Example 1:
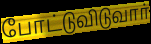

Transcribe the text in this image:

போட்டுவிடுவார்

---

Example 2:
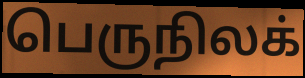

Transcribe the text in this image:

பெருநிலக்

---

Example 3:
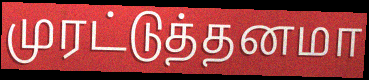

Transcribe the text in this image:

முரட்டுத்தனமா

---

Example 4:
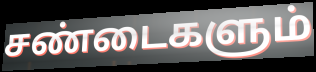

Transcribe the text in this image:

சண்டைகளும்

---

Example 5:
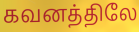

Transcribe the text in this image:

கவனத்திலே